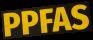
PPFAS